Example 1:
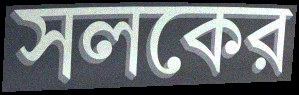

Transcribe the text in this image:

সলকের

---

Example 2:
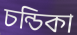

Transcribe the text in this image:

চন্ডিকা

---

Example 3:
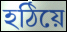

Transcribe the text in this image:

হঠিয়ে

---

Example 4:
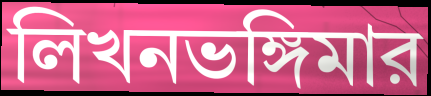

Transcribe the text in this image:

লিখনভঙ্গিমার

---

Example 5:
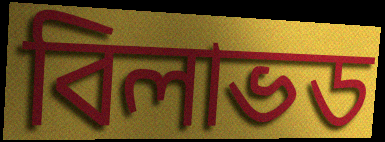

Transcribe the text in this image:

বিলাভড